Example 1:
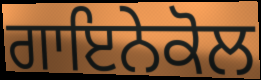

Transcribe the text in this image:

ਗਾਇਨੇਕੋਲ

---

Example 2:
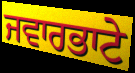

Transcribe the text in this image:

ਜਵਾਰਭਾਟੇ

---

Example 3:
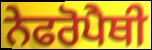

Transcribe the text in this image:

ਨੇਫਰੋਪੈਥੀ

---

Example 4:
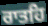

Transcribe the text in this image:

ਰਾਤਹਿ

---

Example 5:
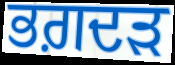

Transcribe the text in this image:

ਭਗ਼ਦੜ